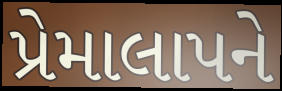
પ્રેમાલાપને